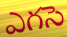
ఎగసె